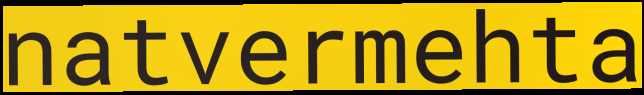
natvermehta